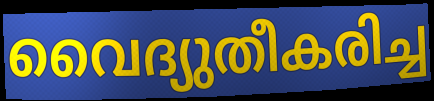
വൈദ്യുതീകരിച്ച